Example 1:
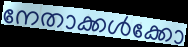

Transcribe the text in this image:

നേതാക്കൾക്കോ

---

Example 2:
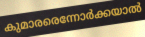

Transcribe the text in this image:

കുമാരരെന്നോർക്കയാൽ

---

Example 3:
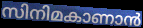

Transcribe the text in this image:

സിനിമകാണാൻ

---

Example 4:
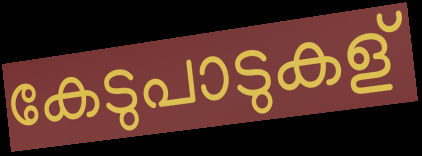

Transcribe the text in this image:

കേടുപാടുകള്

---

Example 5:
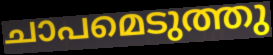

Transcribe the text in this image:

ചാപമെടുത്തു